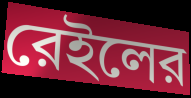
রেইলের